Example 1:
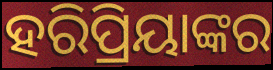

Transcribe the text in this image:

ହରିପ୍ରିୟାଙ୍କର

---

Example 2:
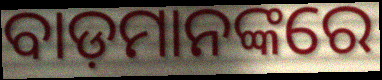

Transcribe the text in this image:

ବାଡ଼ମାନଙ୍କରେ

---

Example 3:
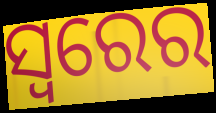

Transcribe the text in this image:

ସ୍ୱରେର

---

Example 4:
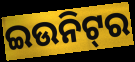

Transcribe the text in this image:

ଇଉନିଟ୍‍ର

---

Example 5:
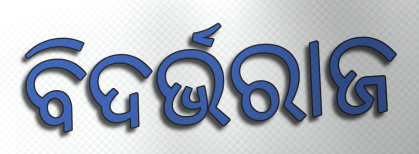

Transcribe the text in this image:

ବିଦର୍ଭରାଜ